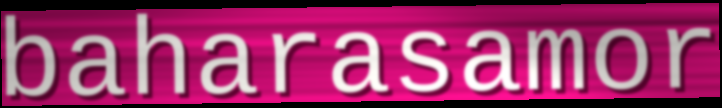
baharasamor